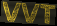
VVT